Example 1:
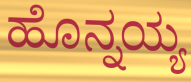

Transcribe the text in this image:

ಹೊನ್ನಯ್ಯ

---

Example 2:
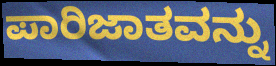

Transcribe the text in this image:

ಪಾರಿಜಾತವನ್ನು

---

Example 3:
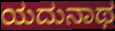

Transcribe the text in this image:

ಯದುನಾಥ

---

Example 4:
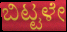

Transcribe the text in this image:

ಬಿಟ್ಟಳೇ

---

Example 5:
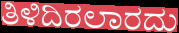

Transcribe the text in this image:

ತಿಳಿದಿರಲಾರದು